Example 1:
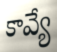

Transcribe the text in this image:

కావ్యే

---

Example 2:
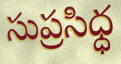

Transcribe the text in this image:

సుప్రసిధ్ధ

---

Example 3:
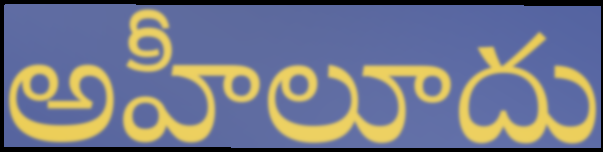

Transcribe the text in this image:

అహీలూదు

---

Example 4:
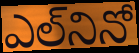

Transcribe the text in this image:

ఎల్‌నినో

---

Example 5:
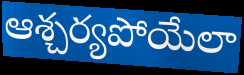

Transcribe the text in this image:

ఆశ్చర్యపోయేలా